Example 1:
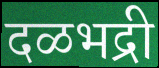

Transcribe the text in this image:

दळभद्री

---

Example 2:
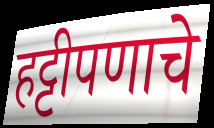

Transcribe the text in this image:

हट्टीपणाचे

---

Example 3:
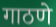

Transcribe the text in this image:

गाठणे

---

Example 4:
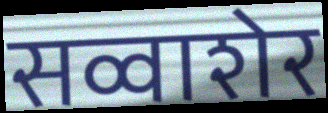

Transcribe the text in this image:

सव्वाशेर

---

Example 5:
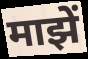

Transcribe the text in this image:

माझें